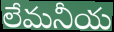
లేమనీయ